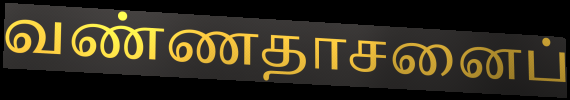
வண்ணதாசனைப்